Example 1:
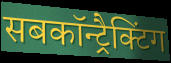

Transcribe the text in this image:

सबकॉन्ट्रैक्टिंग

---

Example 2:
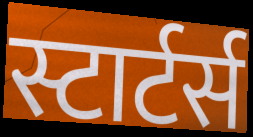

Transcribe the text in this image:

स्टार्टर्स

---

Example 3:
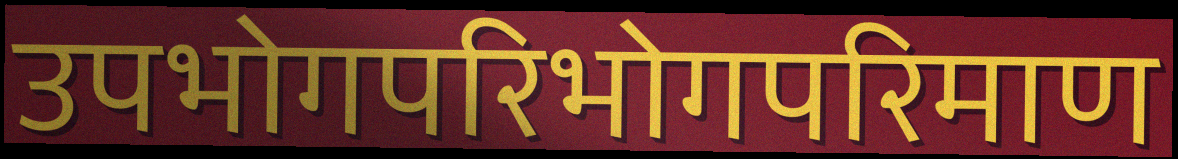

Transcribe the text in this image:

उपभोगपरिभोगपरिमाण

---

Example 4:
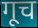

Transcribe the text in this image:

गूच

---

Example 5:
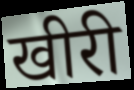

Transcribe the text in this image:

खीरी